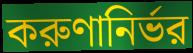
করুণানির্ভর